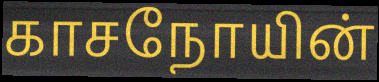
காசநோயின்